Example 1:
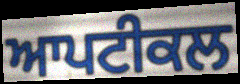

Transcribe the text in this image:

ਆਪਟੀਕਲ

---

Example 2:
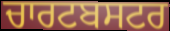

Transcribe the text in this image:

ਚਾਰਟਬਸਟਰ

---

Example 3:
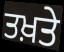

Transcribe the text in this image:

ਤਖ਼ਤੇ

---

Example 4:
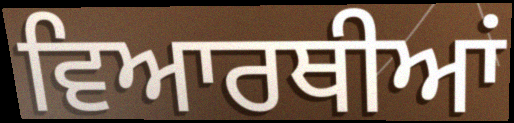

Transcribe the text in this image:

ਵਿਆਰਥੀਆਂ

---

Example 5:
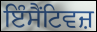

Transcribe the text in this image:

ਇੰਸੈਂਟਿਵਜ਼